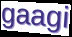
gaagi